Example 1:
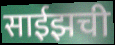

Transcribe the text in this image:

साईझची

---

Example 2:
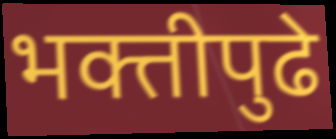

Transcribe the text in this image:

भक्तीपुढे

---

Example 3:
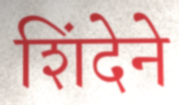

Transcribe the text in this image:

शिंदेने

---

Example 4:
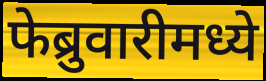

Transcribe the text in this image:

फेब्रुवारीमध्ये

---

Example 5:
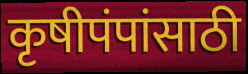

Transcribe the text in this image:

कृषीपंपांसाठी